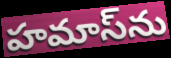
హమాస్‌ను